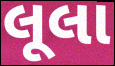
લૂલા